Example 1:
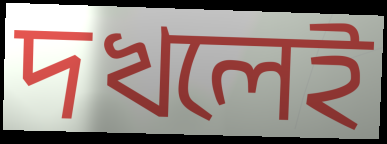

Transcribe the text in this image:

দখলেই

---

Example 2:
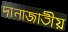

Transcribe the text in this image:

দানাজাতীয়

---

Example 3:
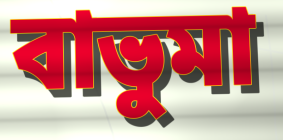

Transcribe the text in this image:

বাভুমা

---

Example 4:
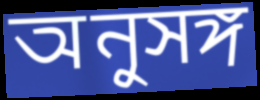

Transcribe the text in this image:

অনুসঙ্গ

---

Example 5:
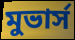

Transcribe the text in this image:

মুভার্স